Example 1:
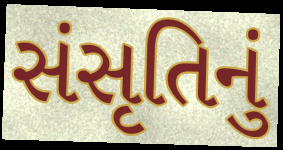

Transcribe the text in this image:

સંસૃતિનું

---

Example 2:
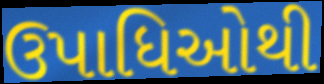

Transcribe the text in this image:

ઉપાધિઓથી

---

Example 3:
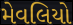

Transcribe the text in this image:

મેવલિયો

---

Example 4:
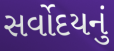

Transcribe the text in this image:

સર્વોદયનું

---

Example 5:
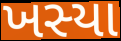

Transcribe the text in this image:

ખસ્યા